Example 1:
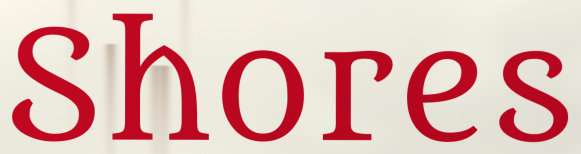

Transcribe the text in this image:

Shores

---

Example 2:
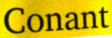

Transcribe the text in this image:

Conant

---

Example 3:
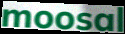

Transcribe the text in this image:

moosal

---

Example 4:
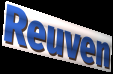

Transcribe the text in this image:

Reuven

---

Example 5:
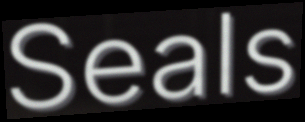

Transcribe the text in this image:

Seals